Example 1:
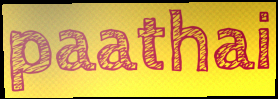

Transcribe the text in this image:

paathai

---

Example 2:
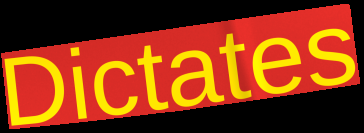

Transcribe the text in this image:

Dictates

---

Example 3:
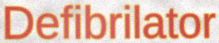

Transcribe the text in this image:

Defibrilator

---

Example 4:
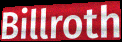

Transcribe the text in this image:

Billroth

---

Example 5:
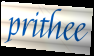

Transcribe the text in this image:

prithee